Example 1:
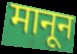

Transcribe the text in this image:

मानून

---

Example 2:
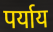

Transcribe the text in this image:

पर्याय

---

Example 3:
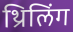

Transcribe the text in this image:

थ्रिलिंग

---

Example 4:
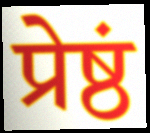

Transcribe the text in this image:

प्रेष्ठं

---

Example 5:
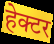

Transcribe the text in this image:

हेक्टर